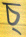
চ্